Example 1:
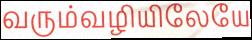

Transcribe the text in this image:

வரும்வழியிலேயே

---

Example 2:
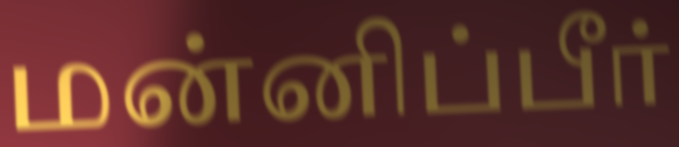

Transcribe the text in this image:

மன்னிப்பீர்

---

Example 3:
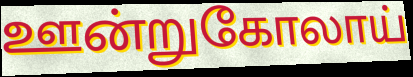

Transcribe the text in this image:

ஊன்றுகோலாய்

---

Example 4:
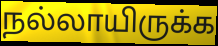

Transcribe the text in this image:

நல்லாயிருக்க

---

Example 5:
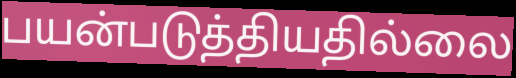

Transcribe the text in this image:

பயன்படுத்தியதில்லை